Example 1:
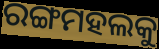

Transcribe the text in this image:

ରଙ୍ଗମହଲକୁ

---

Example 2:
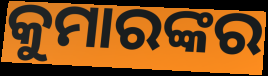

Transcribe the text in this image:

କୁମାରଙ୍କର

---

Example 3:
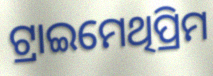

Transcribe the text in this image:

ଟ୍ରାଇମେଥିପ୍ରିମ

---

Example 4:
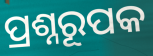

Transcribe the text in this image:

ପ୍ରଶ୍ନରୂପକ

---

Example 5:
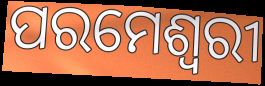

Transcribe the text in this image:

ପରମେଶ୍ୱରୀ